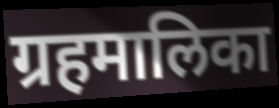
ग्रहमालिका